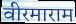
वीरमाराम